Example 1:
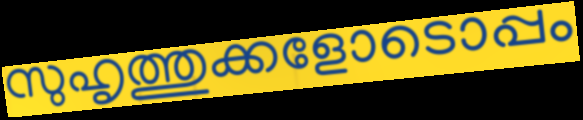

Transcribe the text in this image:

സുഹൃത്തുക്കളോടൊപ്പം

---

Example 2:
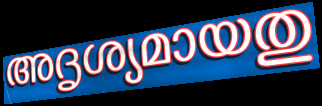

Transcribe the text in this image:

അദൃശ്യമായതു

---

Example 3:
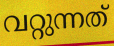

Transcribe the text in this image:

വറ്റുന്നത്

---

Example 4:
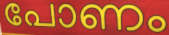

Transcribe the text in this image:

പോണം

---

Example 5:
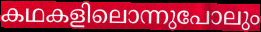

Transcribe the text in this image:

കഥകളിലൊന്നുപോലും